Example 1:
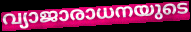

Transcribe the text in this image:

വ്യാജാരാധനയുടെ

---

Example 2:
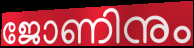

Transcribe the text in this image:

ജോണിനും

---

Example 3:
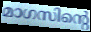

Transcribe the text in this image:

മാഗസിന്റെ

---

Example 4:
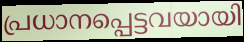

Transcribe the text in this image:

പ്രധാനപ്പെട്ടവയായി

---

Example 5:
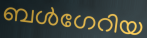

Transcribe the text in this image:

ബൾഗേറിയ